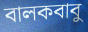
বালকবাবু